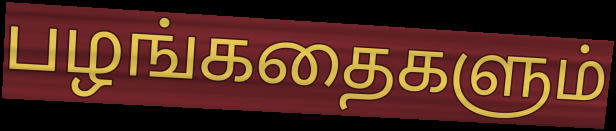
பழங்கதைகளும்